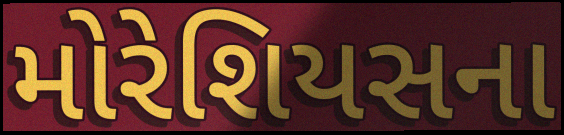
મોરેશિયસના